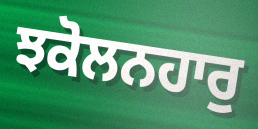
ਝਕੋਲਨਹਾਰੁ